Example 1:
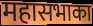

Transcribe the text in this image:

महासभाका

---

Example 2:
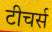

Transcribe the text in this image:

टीचर्स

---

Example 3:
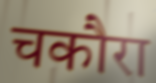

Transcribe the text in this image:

चकौरा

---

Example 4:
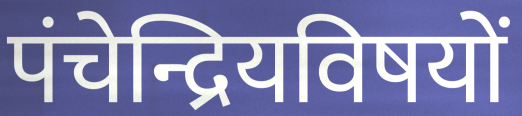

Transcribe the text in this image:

पंचेन्द्रियविषयों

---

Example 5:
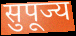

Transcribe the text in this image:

सुपूज्य